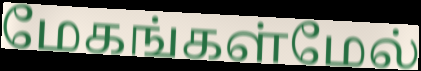
மேகங்கள்மேல்